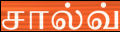
சால்வ்